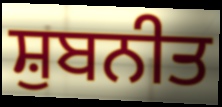
ਸ਼ੁਬਨੀਤ